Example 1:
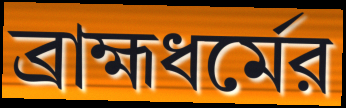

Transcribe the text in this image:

ব্রাহ্মধর্মের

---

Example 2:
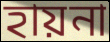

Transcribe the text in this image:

হায়না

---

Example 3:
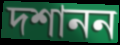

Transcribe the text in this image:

দশানন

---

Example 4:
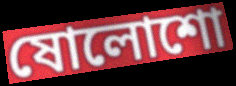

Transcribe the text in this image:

ষোলোশো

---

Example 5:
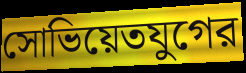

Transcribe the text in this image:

সোভিয়েতযুগের